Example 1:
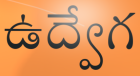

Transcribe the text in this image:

ఉద్వేగ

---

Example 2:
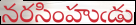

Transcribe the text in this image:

నరసింహుఁడు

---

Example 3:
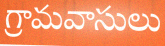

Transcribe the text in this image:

గ్రామవాసులు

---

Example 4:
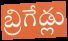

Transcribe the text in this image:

బ్రిగేడ్లు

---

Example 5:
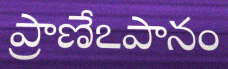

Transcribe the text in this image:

ప్రాణేఽపానం